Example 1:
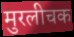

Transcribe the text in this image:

मुरलीचक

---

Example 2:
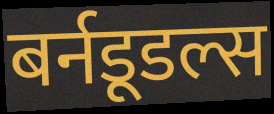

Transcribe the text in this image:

बर्नडूडल्स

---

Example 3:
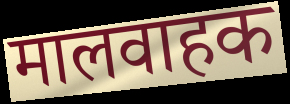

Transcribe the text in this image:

मालवाहक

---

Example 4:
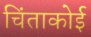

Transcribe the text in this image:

चिंताकोई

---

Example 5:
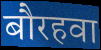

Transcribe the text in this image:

बौरहवा